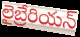
లైబ్రేరియన్